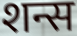
शन्स